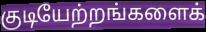
குடியேற்றங்களைக்